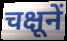
चक्षूनें